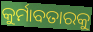
କୁର୍ମାବତାରକୁ